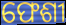
ଫେଶୀ